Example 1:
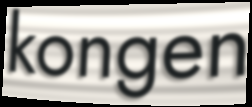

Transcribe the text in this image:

kongen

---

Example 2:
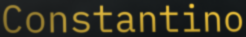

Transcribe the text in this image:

Constantino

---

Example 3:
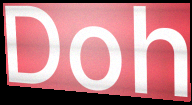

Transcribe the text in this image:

Doh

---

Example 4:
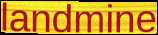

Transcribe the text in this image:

landmine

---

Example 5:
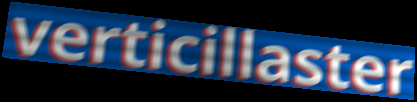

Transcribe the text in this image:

verticillaster